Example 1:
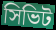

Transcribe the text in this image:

সিভিট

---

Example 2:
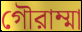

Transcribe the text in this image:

গৌরাম্মা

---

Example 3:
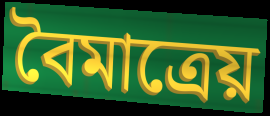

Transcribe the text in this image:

বৈমাত্রেয়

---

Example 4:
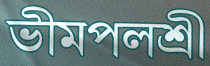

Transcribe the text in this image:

ভীমপলশ্রী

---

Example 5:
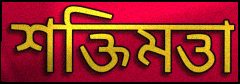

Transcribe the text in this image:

শক্তিমত্তা